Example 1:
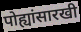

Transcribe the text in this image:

पोह्यांसारखी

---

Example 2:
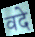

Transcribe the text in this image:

वदे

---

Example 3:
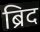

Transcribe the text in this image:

ब्रिद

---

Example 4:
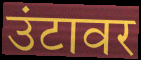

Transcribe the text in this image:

उंटावर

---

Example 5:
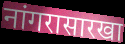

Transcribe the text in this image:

नांगरासारखा